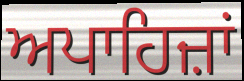
ਅਪਾਹਿਜ਼ਾਂ